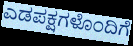
ಎಡಪಕ್ಷಗಳೊಂದಿಗೆ